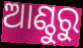
ଆଣ୍ଠୁରୁ